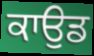
ਕਾਉਡ